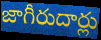
జాగీరుదార్లు